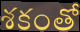
శకంతో